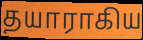
தயாராகிய